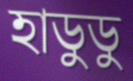
হাডুডু